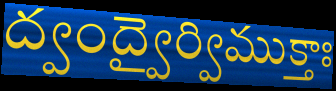
ద్వంద్వైర్విముక్తాః